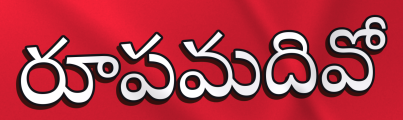
రూపమదివో